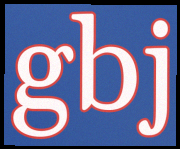
gbj